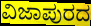
ವಿಜಾಪುರದ